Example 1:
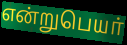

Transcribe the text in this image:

என்றுபெயர்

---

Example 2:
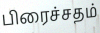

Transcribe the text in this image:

பிரைச்சதம்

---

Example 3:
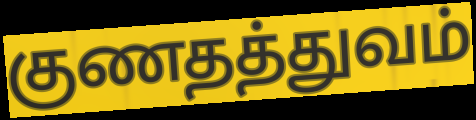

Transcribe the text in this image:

குணதத்துவம்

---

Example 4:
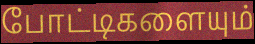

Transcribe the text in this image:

போட்டிகளையும்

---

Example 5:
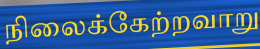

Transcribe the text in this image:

நிலைக்கேற்றவாறு